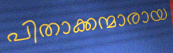
പിതാക്കന്മാരായ